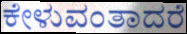
ಕೇಳುವಂತಾದರೆ